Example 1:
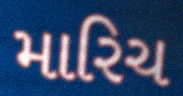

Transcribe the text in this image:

મારિચ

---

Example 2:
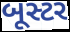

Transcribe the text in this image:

બૂસ્ટર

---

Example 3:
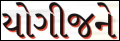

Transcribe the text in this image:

યોગીજને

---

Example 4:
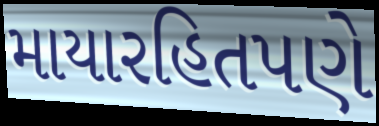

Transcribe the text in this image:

માયારહિતપણે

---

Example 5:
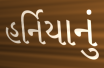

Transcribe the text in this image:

હર્નિયાનું